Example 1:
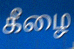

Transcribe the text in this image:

கீழை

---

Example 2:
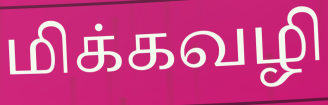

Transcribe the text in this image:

மிக்கவழி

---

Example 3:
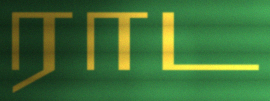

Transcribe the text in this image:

ராட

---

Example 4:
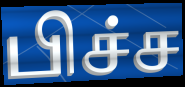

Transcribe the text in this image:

பிச்ச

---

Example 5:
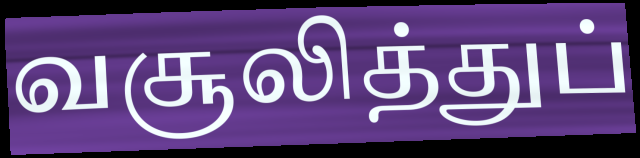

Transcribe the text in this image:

வசூலித்துப்